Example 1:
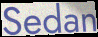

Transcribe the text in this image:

Sedan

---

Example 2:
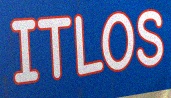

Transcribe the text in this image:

ITLOS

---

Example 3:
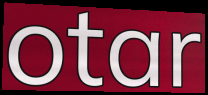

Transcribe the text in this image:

otar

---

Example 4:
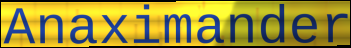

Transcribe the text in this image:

Anaximander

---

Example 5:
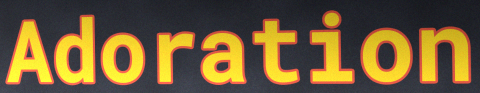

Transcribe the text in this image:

Adoration